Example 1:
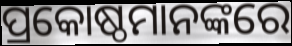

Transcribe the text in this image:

ପ୍ରକୋଷ୍ଠମାନଙ୍କରେ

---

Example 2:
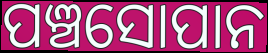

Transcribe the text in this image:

ପଞ୍ଚସୋପାନ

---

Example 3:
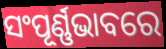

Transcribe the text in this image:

ସଂପୂର୍ଣ୍ଣଭାବରେ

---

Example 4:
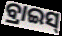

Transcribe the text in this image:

ବ୍ରାଇସ୍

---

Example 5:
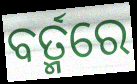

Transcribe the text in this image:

ବର୍ତ୍ମରେ